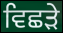
ਵਿਛੜੇ